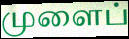
முளைப்